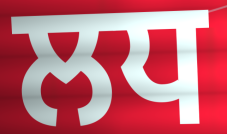
ਲਧ